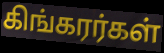
கிங்கரர்கள்